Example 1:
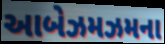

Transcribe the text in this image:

આબેઝમઝમના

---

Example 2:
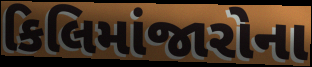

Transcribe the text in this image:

કિલિમાંજારોના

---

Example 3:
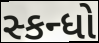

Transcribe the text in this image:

સ્કન્ધો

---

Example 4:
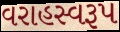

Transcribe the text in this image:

વરાહસ્વરૂપ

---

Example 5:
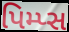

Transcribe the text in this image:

પિમ્પ્સ